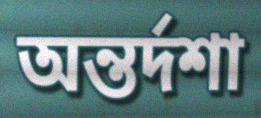
অন্তর্দশা